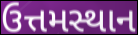
ઉત્તમસ્થાન